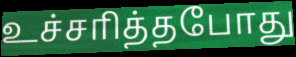
உச்சரித்தபோது